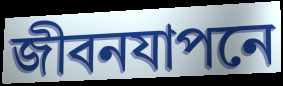
জীবনযাপনে